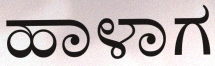
ಹಾಳಾಗ